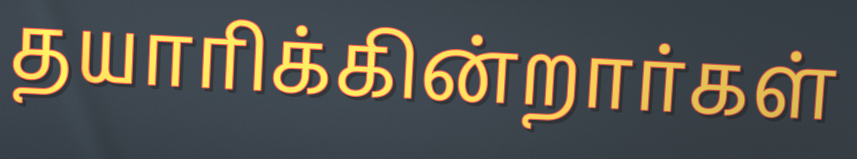
தயாரிக்கின்றார்கள்